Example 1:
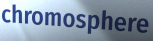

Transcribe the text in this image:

chromosphere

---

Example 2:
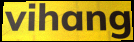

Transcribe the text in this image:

vihang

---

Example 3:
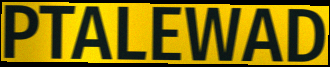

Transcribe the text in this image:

PTALEWAD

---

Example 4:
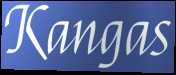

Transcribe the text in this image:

Kangas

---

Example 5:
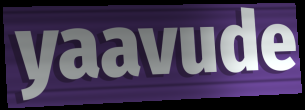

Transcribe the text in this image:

yaavude